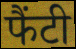
फैंटी